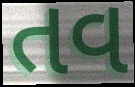
તવ